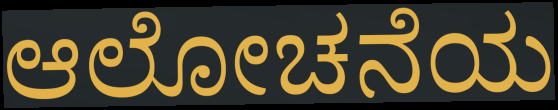
ಆಲೋಚನೆಯ